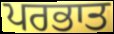
ਪਰਭਾਤ